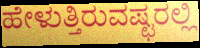
ಹೇಳುತ್ತಿರುವಷ್ಟರಲ್ಲಿ